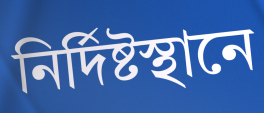
নির্দিষ্টস্থানে